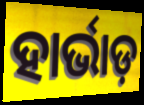
ହାର୍ଭାଡ଼